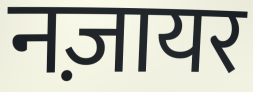
नज़ायर